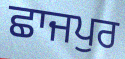
ਛਾਜਪੁਰ